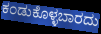
ಕಂಡುಕೊಳ್ಳಬಾರದು